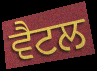
ਵੈਟਲ